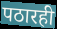
पठारही